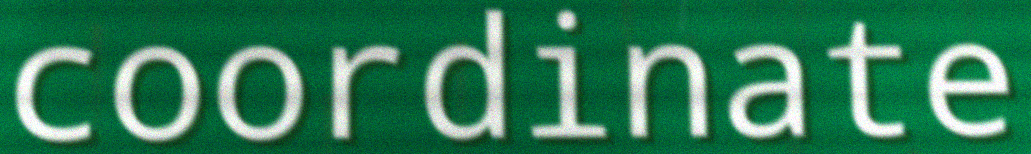
coordinate